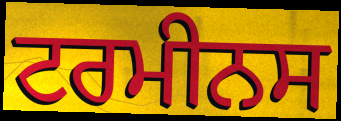
ਟਰਮੀਨਸ